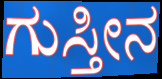
ಗುಸ್ತೀನ